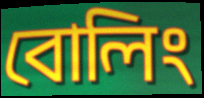
বোলিং